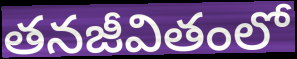
తనజీవితంలో